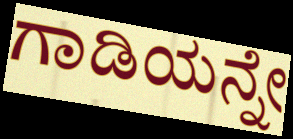
ಗಾಡಿಯನ್ನೇ